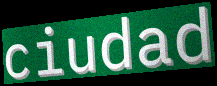
ciudad